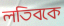
লতিবকে